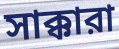
সাক্কারা